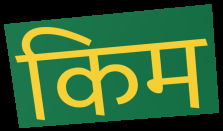
किम